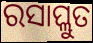
ରସାପ୍ଲୁତ